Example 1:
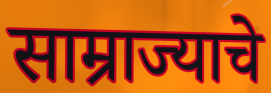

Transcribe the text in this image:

साम्राज्याचे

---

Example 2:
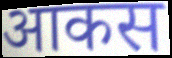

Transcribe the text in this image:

आकस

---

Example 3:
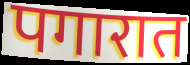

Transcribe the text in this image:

पगारात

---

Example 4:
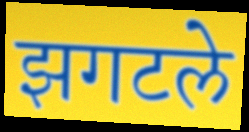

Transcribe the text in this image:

झगटले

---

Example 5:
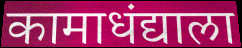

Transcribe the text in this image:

कामाधंद्याला